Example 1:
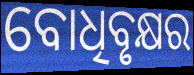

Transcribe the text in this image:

ବୋଧିବୃକ୍ଷର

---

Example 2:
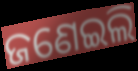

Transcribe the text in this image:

ଜଣେଇଲି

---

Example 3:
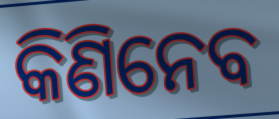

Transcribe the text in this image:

କିଣିନେବ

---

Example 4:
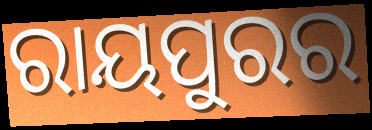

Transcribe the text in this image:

ରାୟପୁରର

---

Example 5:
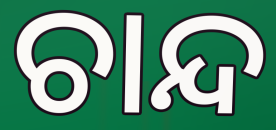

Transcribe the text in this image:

ଚାନ୍ଦ